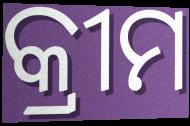
କ୍ରୀମ